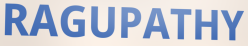
RAGUPATHY